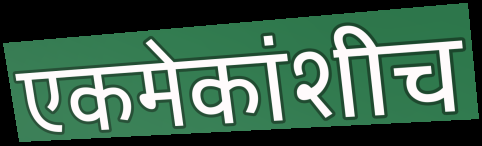
एकमेकांशीच